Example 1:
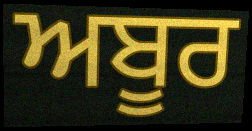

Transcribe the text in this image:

ਅਬੂਰ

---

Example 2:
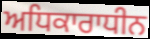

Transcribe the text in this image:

ਅਧਿਕਾਰਾਧੀਨ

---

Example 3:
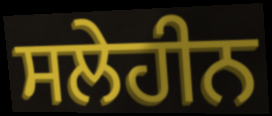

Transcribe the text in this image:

ਸਲੇਹੀਨ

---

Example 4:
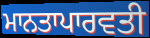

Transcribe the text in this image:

ਮਾਨਤਾਪਾਰਵਤੀ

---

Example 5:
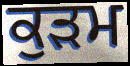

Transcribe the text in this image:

ਕੁੜਮ